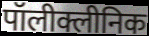
पॉलीक्लीनिक